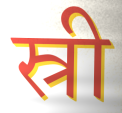
स्री